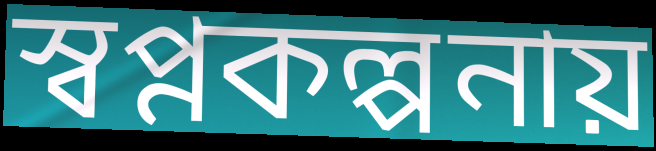
স্বপ্নকল্পনায়